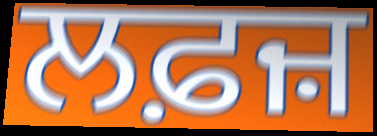
ਲਫ਼ਜ਼